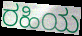
ರಹಿಯ